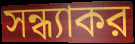
সন্ধ্যাকর